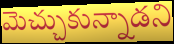
మెచ్చుకున్నాడని